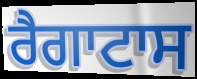
ਰੈਗਾਟਾਸ